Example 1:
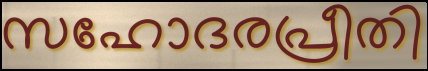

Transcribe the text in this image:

സഹോദരപ്രീതി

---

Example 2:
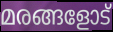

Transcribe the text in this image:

മരങ്ങളോട്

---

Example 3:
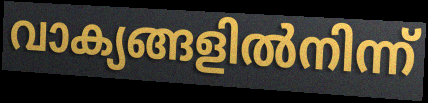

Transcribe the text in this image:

വാക്യങ്ങളിൽനിന്ന്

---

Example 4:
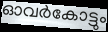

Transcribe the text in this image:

ഓവർകോട്ടും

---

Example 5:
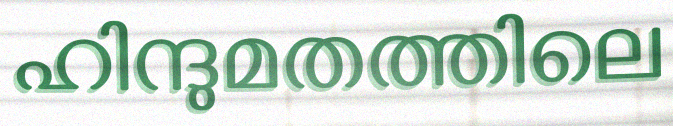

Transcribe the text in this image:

ഹിന്ദുമതത്തിലെ